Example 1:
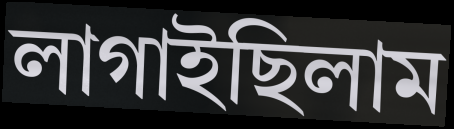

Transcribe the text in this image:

লাগাইছিলাম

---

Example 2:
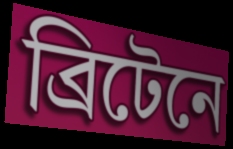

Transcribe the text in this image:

ব্রিটেনে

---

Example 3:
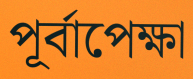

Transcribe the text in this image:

পূর্বাপেক্ষা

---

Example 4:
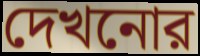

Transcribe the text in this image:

দেখনোর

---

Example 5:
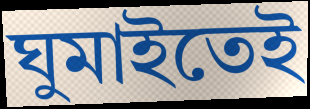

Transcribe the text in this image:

ঘুমাইতেই